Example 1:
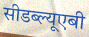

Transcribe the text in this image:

सीडब्ल्यूएबी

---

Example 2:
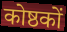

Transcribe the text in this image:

कोष्ठकों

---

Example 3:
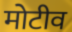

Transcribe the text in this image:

मोटीव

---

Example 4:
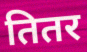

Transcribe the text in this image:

तितर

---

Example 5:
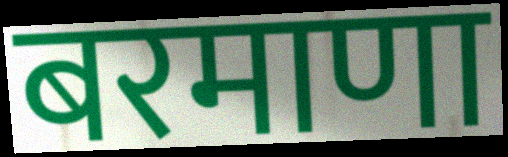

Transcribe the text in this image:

बरमाणा